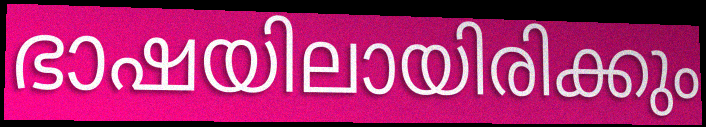
ഭാഷയിലായിരിക്കും